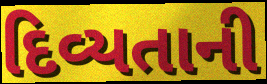
દિવ્યતાની